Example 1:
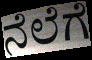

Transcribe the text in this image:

ನೆಲೆಗೆ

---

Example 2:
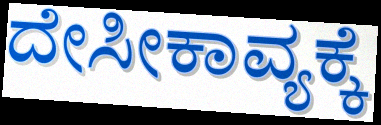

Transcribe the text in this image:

ದೇಸೀಕಾವ್ಯಕ್ಕೆ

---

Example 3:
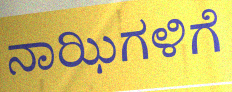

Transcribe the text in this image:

ನಾಝಿಗಳಿಗೆ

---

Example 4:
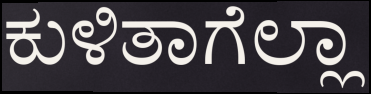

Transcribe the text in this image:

ಕುಳಿತಾಗೆಲ್ಲಾ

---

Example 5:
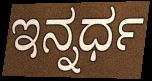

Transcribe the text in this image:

ಇನ್ನರ್ಧ